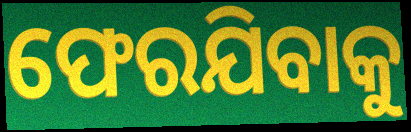
ଫେରଯିବାକୁ